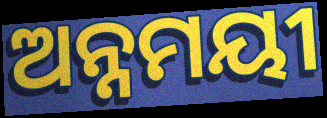
ଅନ୍ନମୟୀ